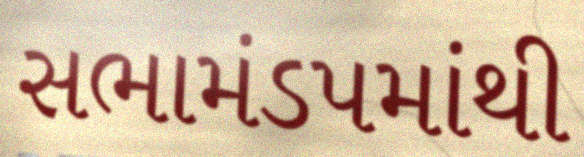
સભામંડપમાંથી